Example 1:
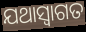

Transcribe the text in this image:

ଯଥାସ୍ଵାଗତ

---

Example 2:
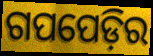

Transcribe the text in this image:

ଗପପେଡ଼ିର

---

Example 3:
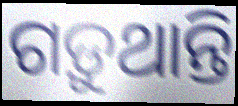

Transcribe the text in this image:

ଗଡ଼ୁଥାନ୍ତି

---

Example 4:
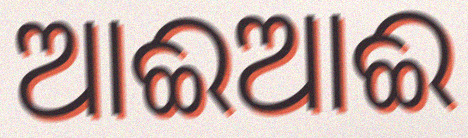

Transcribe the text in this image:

ଆଈଆଈ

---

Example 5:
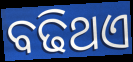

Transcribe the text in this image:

ବଢିଥଏ